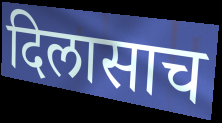
दिलासाच